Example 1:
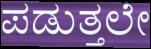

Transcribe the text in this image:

ಪಡುತ್ತಲೇ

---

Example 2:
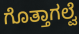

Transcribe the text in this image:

ಗೊತ್ತಾಗಲ್ವೆ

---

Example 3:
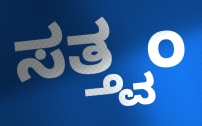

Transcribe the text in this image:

ಸತ್ತ್ವಂ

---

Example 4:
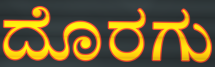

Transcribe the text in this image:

ದೊರಗು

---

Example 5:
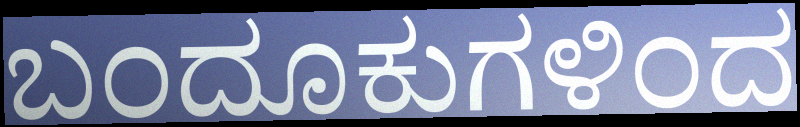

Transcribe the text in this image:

ಬಂದೂಕುಗಳಿಂದ